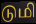
டுமி